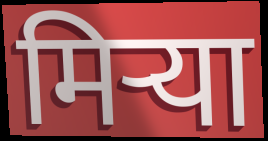
मिऱ्या